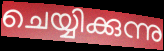
ചെയ്യിക്കുന്നു